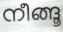
നീങ്ങൂ